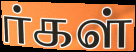
ர்கள்